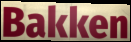
Bakken